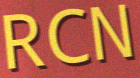
RCN